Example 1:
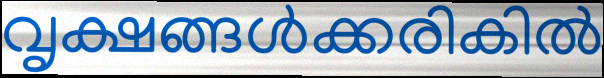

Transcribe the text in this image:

വൃക്ഷങ്ങൾക്കരികിൽ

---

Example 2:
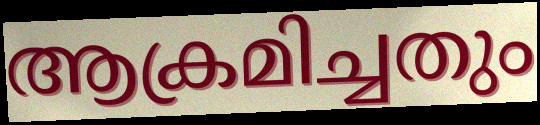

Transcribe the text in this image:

ആക്രമിച്ചതും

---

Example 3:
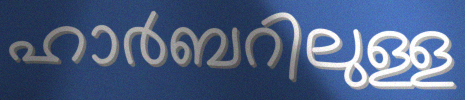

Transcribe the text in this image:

ഹാർബറിലുള്ള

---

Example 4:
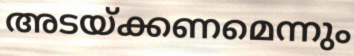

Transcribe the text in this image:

അടയ്ക്കണമെന്നും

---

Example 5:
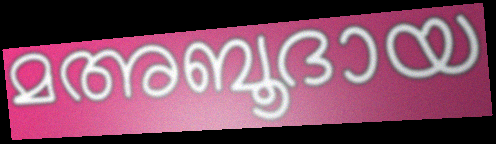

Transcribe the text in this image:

മഅബൂദായ